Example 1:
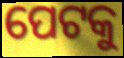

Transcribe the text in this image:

ପେଟକୁ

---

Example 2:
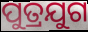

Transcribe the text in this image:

ପୁତ୍ରଯୁଗ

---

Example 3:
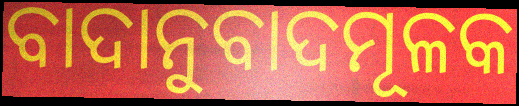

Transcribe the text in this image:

ବାଦାନୁବାଦମୂଳକ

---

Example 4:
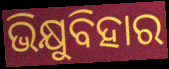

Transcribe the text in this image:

ଭିକ୍ଷୁବିହାର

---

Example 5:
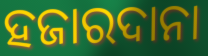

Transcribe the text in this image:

ହଜାରଦାନା